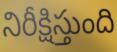
నిరీక్షిస్తుంది